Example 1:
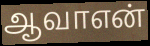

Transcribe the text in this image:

ஆவாஎன்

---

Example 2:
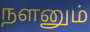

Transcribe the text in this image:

நளனும்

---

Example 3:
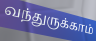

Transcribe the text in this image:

வந்துருக்காம்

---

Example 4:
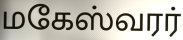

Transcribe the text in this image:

மகேஸ்வரர்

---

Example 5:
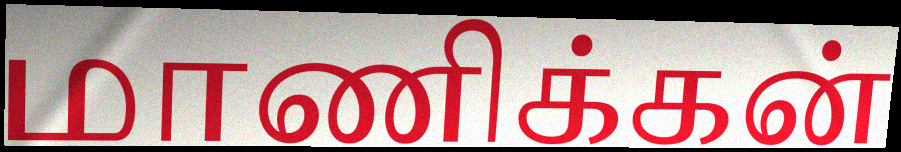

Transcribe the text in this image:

மாணிக்கன்